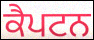
ਕੈਪਟਨ